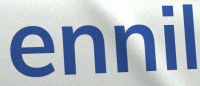
ennil